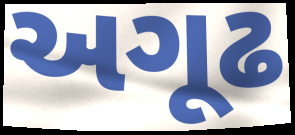
અગૂઢ